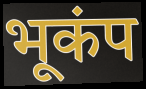
भूकंप